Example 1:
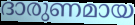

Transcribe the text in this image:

ദാരുണമായ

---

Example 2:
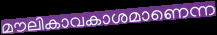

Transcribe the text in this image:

മൗലികാവകാശമാണെന്ന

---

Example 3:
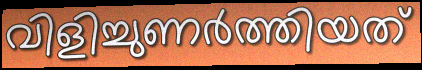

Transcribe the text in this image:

വിളിച്ചുണർത്തിയത്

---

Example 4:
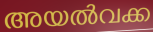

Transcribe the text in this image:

അയൽവക്ക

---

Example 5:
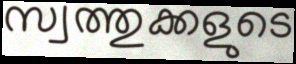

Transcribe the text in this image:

സ്വത്തുക്കളുടെ